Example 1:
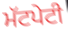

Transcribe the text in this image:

ਮੱਟਪੇਟੀ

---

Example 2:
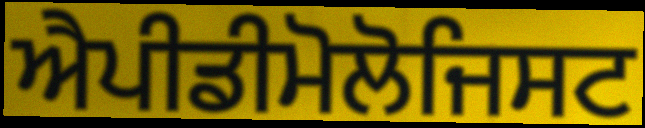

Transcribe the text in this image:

ਐਪੀਡੀਮੋਲੋਜਿਸਟ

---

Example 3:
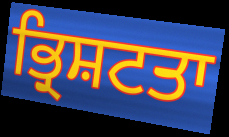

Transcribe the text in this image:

ਭ੍ਰਿਸ਼ਟਤਾ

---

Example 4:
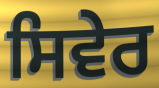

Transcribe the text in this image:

ਸਿਵੇਰ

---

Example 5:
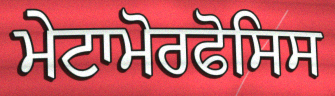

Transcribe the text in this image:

ਮੇਟਾਮੋਰਫੋਸਿਸ